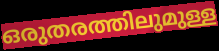
ഒരുതരത്തിലുമുള്ള